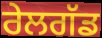
ਰੇਲਗੱਡ